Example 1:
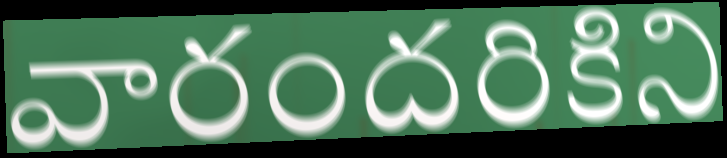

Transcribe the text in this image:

వారందరికిని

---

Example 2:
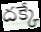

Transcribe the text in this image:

దక్కే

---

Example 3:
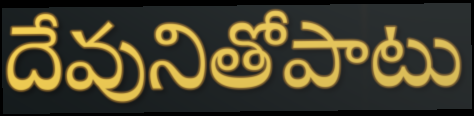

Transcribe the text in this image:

దేవునితోపాటు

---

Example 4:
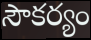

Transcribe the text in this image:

సౌకర్యం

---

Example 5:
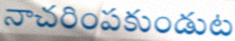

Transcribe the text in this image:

నాచరింపకుండుట